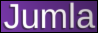
Jumla